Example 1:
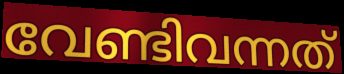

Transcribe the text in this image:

വേണ്ടിവന്നത്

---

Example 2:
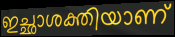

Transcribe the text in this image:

ഇച്ഛാശക്തിയാണ്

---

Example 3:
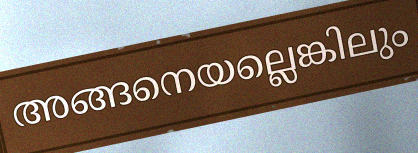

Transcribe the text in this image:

അങ്ങനെയല്ലെങ്കിലും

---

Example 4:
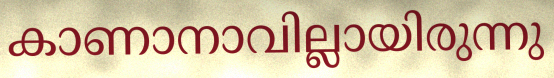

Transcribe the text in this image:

കാണാനാവില്ലായിരുന്നു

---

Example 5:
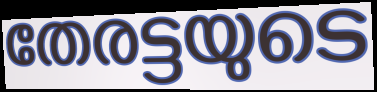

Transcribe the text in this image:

തേരട്ടയുടെ